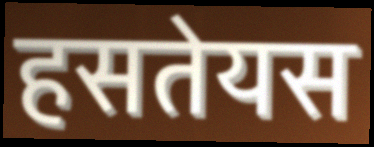
हसतेयस